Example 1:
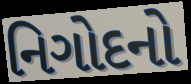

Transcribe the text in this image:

નિગોદનો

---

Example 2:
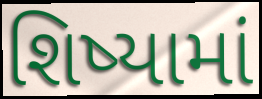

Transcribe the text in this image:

શિષ્યામાં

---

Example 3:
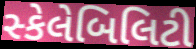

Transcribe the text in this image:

સ્કેલેબિલિટી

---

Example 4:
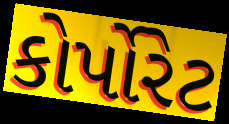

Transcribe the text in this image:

કોર્પોરેટ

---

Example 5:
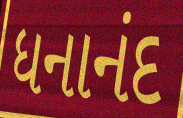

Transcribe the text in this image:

ધનાનંદ